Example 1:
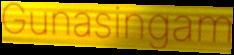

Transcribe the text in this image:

Gunasingam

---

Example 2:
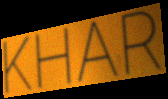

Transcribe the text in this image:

KHAR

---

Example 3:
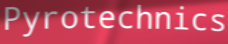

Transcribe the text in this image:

Pyrotechnics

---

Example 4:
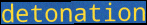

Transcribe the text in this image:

detonation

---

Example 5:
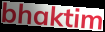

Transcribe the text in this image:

bhaktim